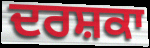
ਦਰਸ਼ਕਾ